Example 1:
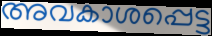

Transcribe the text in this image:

അവകാശപ്പെട്ട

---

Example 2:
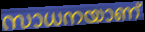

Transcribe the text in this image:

സാധനയാണ്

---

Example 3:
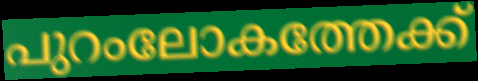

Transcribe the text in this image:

പുറംലോകത്തേക്ക്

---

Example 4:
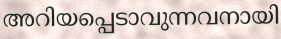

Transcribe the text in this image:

അറിയപ്പെടാവുന്നവനായി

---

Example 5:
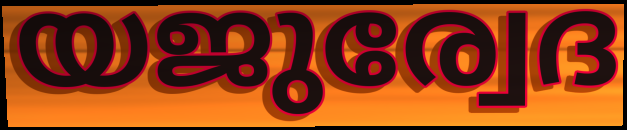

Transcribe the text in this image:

യജുര്വേദ